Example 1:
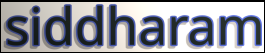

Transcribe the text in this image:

siddharam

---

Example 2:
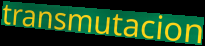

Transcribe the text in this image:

transmutacion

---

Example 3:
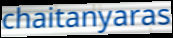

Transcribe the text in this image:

chaitanyaras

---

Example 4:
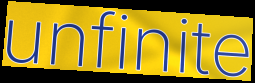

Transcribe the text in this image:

unfinite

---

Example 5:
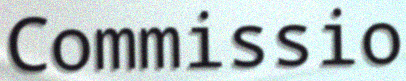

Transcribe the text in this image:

Commissio